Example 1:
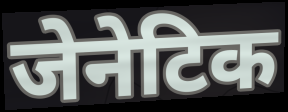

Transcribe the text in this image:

जेनेटिक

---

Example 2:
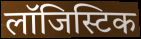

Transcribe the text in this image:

लॉजिस्टिक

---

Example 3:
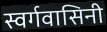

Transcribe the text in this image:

स्वर्गवासिनी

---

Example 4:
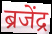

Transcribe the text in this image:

ब्रजेंद्र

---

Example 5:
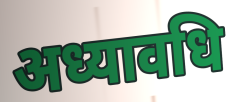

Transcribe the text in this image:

अध्यावधि